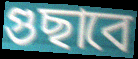
গুছাবে